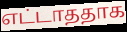
எட்டாததாக